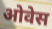
ओवेस